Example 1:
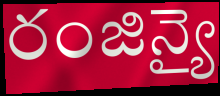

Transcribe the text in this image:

రంజిన్యై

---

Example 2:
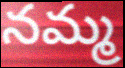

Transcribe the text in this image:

నమ్మ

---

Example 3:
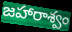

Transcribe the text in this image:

జహారాశ్వం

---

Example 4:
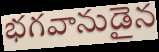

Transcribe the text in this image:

భగవానుడైన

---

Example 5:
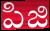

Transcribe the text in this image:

పిజి